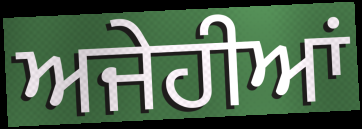
ਅਜੇਹੀਆਂ